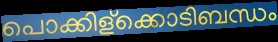
പൊക്കിള്ക്കൊടിബന്ധം